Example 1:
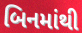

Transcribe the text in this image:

બિનમાંથી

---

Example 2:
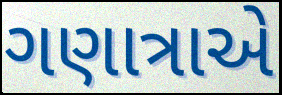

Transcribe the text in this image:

ગણાત્રાએ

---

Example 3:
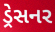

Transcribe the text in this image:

ડ્રેસનર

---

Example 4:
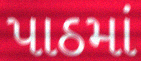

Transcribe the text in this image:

પાઠમાં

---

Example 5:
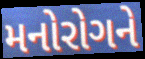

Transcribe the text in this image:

મનોરોગને